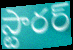
స్టారర్